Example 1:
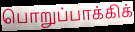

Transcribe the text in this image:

பொறுப்பாக்கிக்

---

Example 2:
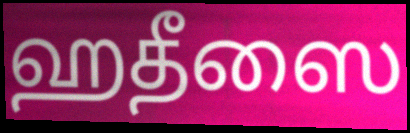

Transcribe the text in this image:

ஹதீஸை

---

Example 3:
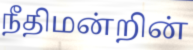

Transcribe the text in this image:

நீதிமன்றின்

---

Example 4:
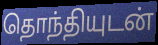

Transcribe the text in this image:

தொந்தியுடன்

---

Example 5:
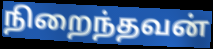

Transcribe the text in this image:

நிறைந்தவன்